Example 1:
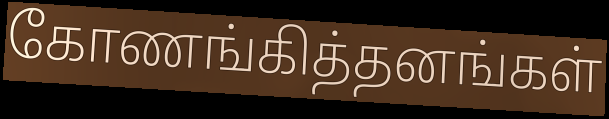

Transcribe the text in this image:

கோணங்கித்தனங்கள்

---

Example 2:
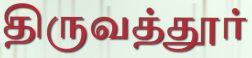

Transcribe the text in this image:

திருவத்தூர்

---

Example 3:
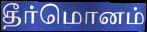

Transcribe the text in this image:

தீர்மொனம்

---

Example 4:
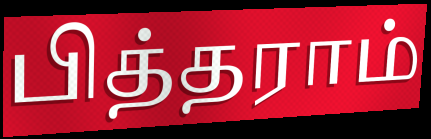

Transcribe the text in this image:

பித்தராம்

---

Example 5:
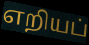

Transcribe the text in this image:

எறியப்